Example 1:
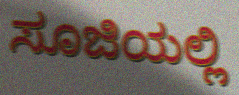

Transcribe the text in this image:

ಸೂಜಿಯಲ್ಲಿ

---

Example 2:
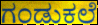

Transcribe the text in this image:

ಗಂಡುಕಲೆ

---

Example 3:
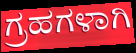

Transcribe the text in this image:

ಗ್ರಹಗಳಾಗಿ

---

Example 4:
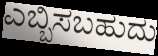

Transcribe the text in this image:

ಎಬ್ಬಿಸಬಹುದು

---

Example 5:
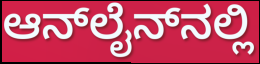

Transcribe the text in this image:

ಆನ್‌ಲೈನ್‌ನಲ್ಲಿ